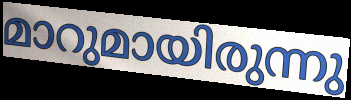
മാറുമായിരുന്നു